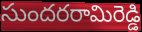
సుందరరామిరెడ్డి